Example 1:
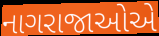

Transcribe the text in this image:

નાગરાજાઓએ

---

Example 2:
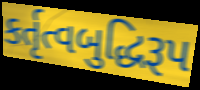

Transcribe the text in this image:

કર્તૃત્વબુદ્ધિરૂપ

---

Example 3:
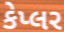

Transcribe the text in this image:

કેપ્લર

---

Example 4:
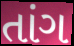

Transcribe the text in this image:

તાંગ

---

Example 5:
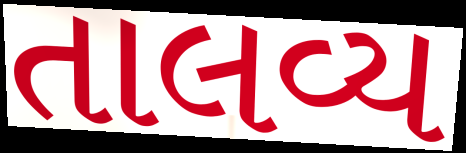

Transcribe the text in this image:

તાલવ્ય